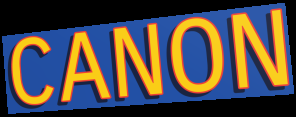
CANON